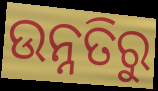
ଉନ୍ନତିରୁ